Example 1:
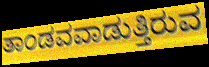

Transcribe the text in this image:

ತಾಂಡವವಾಡುತ್ತಿರುವ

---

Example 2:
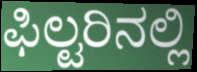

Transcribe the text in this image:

ಫಿಲ್ಟರಿನಲ್ಲಿ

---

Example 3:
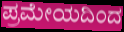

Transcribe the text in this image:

ಪ್ರಮೇಯದಿಂದ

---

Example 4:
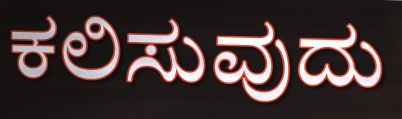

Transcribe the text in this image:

ಕಲಿಸುವುದು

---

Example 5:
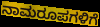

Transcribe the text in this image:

ನಾಮರೂಪಗಳಿಗೆ